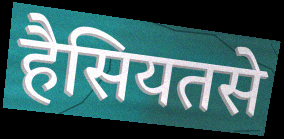
हैसियतसे